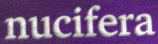
nucifera